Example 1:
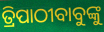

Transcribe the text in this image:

ତ୍ରିପାଠୀବାବୁଙ୍କୁ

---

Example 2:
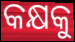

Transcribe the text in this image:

କକ୍ଷକୁ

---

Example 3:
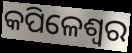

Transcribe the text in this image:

କପିଳେଶ୍ଵର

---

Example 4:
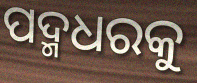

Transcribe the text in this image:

ପଦ୍ମଧରକୁ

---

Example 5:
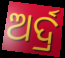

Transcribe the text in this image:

ଅର୍ଦ୍ର